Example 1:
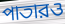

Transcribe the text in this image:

পাতারও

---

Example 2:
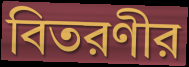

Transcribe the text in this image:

বিতরণীর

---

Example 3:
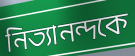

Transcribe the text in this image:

নিত্যানন্দকে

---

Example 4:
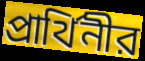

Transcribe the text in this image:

প্রার্থিনীর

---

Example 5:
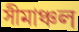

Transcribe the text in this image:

সীমাঞ্চল